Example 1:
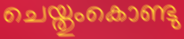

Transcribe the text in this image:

ചെയ്തുംകൊണ്ടു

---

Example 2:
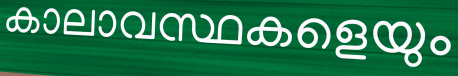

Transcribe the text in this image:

കാലാവസ്ഥകളെയും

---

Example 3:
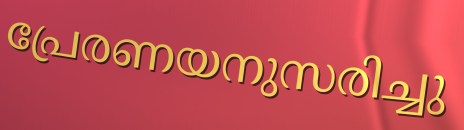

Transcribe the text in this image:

പ്രേരണയനുസരിച്ചു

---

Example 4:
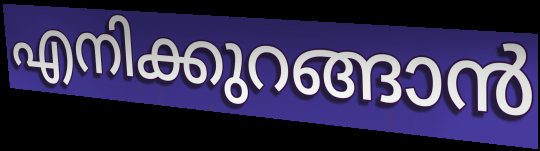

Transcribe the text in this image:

എനിക്കുറങ്ങാൻ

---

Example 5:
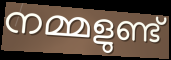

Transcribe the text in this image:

നമ്മളുണ്ട്